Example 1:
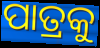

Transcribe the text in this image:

ପାତ୍ରକୁ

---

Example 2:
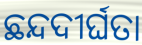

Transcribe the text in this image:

ଛନ୍ଦଦୀର୍ଘତା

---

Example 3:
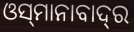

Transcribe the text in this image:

ଓସ୍‌ମାନାବାଦ୍‌ର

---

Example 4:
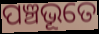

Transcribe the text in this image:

ପଞ୍ଚଭୂତେ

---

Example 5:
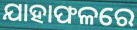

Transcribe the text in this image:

ଯାହାଫଳରେ